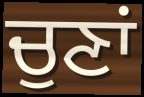
ਚੁਣਾਂ